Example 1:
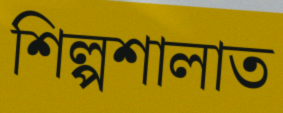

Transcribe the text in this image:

শিল্পশালাত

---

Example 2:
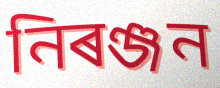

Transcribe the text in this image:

নিৰঞ্জন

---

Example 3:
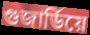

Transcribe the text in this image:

গুজাৰ্ডিয়ে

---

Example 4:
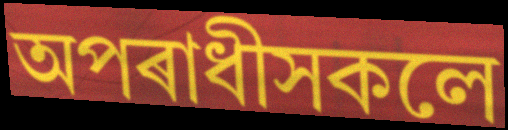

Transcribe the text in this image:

অপৰাধীসকলে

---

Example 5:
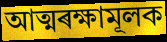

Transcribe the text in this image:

আত্মৰক্ষামূলক